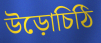
উড়োচিঠি